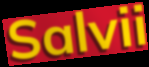
Salvii